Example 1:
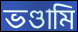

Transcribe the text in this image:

ভণ্ডামি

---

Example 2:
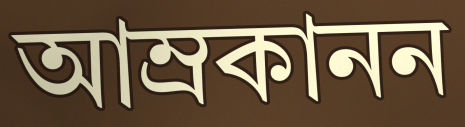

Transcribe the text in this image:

আম্রকানন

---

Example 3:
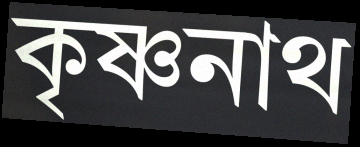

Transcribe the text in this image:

কৃষ্ণনাথ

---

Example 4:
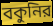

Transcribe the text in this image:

বকুনির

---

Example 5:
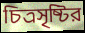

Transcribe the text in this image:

চিত্রসৃষ্টির